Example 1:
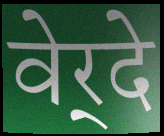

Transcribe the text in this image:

वेर्दे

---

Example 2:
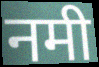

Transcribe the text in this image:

नमी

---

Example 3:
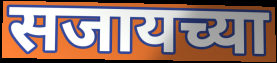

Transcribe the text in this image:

सजायच्या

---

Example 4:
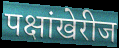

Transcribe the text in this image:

पक्षांखेरीज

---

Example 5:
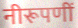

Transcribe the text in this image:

नीरूपणीं